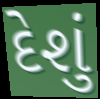
દેશું